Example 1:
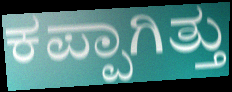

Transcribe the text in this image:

ಕಪ್ಪಾಗಿತ್ತು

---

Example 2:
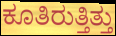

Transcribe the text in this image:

ಕೂತಿರುತ್ತಿತ್ತು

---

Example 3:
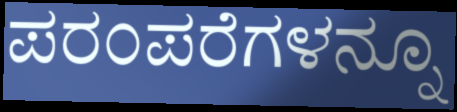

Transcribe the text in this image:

ಪರಂಪರೆಗಳನ್ನೂ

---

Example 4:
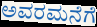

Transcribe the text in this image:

ಅವರಮನೆಗೆ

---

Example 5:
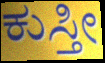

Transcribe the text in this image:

ಕುಸ್ತೀ